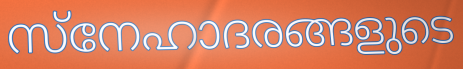
സ്നേഹാദരങ്ങളുടെ